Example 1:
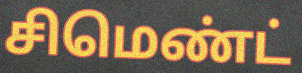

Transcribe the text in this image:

சிமெண்ட்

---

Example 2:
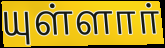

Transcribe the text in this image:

யுள்ளார்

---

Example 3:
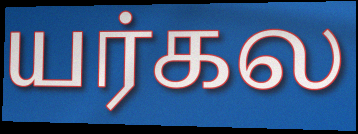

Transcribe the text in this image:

யர்கல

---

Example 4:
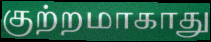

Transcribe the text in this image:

குற்றமாகாது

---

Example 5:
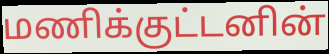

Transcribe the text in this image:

மணிக்குட்டனின்